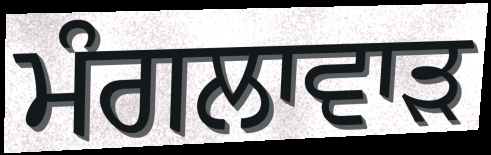
ਮੰਗਲਾਵਾੜ